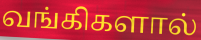
வங்கிகளால்